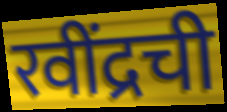
रवींद्रची